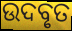
ଉଦବୃତ